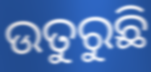
ଉତୁରୁଛି